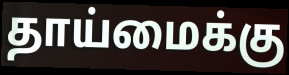
தாய்மைக்கு